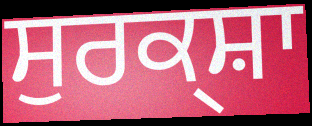
ਸੁਰਕ੍ਸ਼ਾ